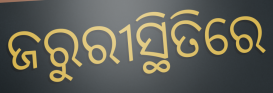
ଜରୁରୀସ୍ଥିତିରେ